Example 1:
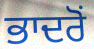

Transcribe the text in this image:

ਭਾਦਰੋਂ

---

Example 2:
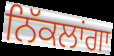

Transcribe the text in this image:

ਨਿੱਕਲਾਂਗਾ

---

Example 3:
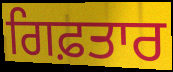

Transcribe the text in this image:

ਗਿਫ਼ਤਾਰ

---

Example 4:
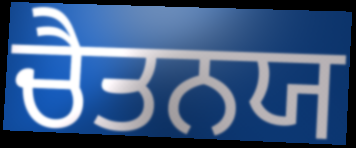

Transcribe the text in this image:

ਚੈਤਨਯ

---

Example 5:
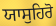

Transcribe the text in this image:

ਯਾਸੁਹਿਰੋ